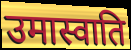
उमास्वाति